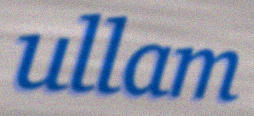
ullam